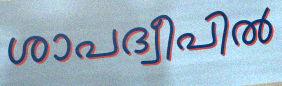
ശാപദ്വീപിൽ